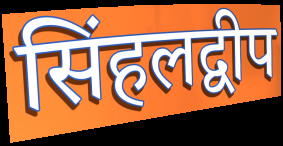
सिंहलद्वीप